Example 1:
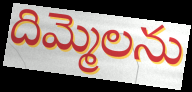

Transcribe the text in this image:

దిమ్మెలను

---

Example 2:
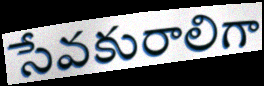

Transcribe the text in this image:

సేవకురాలిగా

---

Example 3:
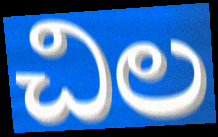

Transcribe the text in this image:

చిల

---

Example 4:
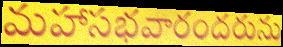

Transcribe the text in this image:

మహాసభవారందరును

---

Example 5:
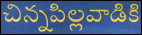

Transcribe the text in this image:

చిన్నపిల్లవాడికి